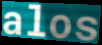
alos